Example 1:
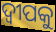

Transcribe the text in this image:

ଦ୍ୱୀପକୁ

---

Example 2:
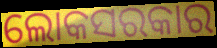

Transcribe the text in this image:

ଲୋକସରକାର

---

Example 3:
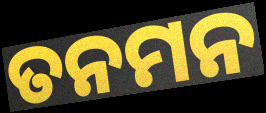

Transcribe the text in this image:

ତନମନ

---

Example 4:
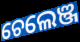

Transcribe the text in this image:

ଚେଲେଞ୍ଜ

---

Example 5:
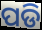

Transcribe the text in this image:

ପଡି